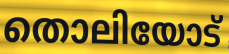
തൊലിയോട്